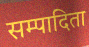
सम्पादिता